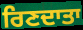
ਰਿਣਦਾਤਾ